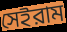
সেইরাম